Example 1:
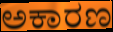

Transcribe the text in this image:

ಅಕಾರಣ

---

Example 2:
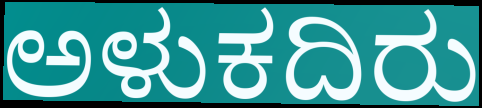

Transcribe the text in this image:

ಅಳುಕದಿರು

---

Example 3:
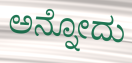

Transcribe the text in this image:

ಅನ್ನೋದು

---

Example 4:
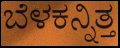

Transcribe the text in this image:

ಬೆಳಕನ್ನಿತ್ತ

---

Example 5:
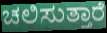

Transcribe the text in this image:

ಚಲಿಸುತ್ತಾರೆ